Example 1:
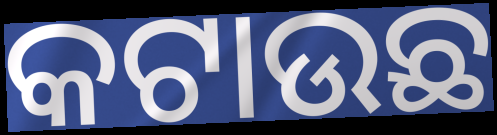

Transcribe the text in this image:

କଟାଉଛ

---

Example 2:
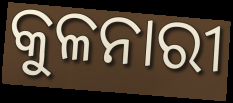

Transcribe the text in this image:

କୁଳନାରୀ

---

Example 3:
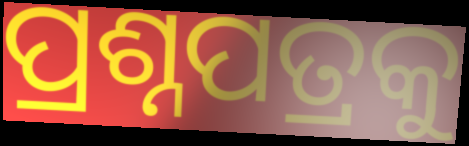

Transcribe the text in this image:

ପ୍ରଶ୍ନପତ୍ରକୁ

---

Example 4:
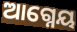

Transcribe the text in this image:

ଆଗ୍ନେୟ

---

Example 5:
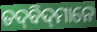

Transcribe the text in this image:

ତଦ୍‌ବିଦ୍‌ମାନେ